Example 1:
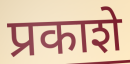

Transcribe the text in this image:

प्रकाशे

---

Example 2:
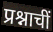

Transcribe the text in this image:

प्रश्नाचीं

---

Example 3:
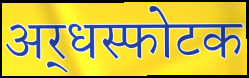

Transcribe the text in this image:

अर्धस्फोटक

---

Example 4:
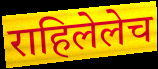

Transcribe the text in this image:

राहिलेलेच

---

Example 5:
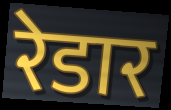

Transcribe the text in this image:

रेडार